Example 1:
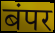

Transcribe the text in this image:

बंपर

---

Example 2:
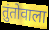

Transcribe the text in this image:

तुंतोवाला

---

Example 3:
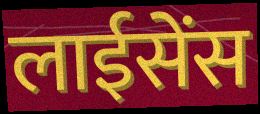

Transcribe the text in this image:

लाईसेंस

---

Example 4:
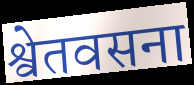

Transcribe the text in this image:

श्वेतवसना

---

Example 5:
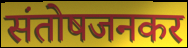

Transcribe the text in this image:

संतोषजनकर